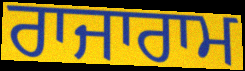
ਰਾਜਾਰਾਮ